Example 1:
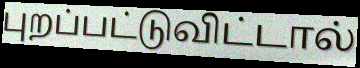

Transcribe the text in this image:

புறப்பட்டுவிட்டால்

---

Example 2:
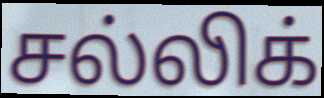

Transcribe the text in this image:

சல்லிக்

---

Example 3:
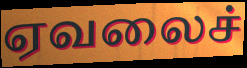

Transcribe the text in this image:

ஏவலைச்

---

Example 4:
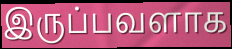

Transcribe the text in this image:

இருப்பவளாக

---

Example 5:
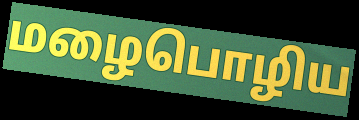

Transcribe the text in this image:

மழைபொழிய